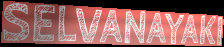
SELVANAYAKI